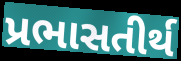
પ્રભાસતીર્થ